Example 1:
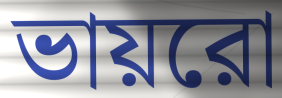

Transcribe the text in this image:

ভায়রো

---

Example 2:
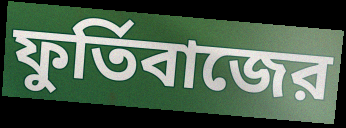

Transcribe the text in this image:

ফুর্তিবাজের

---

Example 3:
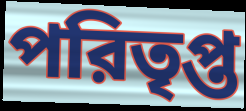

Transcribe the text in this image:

পরিতৃপ্ত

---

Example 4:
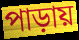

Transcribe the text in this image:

পাড়ায়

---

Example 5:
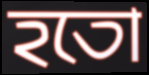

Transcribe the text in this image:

হতো